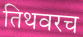
तिथवरच